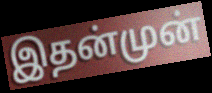
இதன்முன்